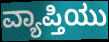
ವ್ಯಾಪ್ತಿಯು